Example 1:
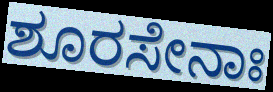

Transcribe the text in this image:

ಶೂರಸೇನಾಃ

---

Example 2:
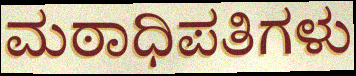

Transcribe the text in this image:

ಮಠಾಧಿಪತಿಗಳು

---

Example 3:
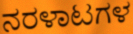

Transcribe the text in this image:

ನರಳಾಟಗಳ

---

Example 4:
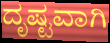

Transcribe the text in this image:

ದೃಷ್ಟವಾಗಿ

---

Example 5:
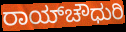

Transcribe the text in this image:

ರಾಯ್‌ಚೌಧುರಿ